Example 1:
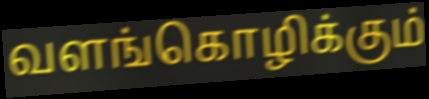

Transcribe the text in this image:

வளங்கொழிக்கும்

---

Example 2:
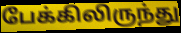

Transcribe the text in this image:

பேக்கிலிருந்து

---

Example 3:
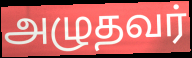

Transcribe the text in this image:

அழுதவர்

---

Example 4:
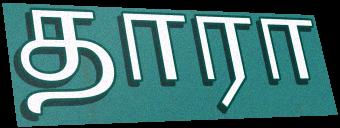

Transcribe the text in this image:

தாரா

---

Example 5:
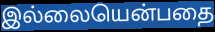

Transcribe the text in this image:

இல்லையென்பதை